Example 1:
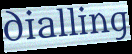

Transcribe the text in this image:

dialling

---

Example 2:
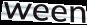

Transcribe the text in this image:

ween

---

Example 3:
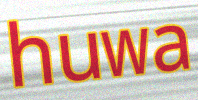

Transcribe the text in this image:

huwa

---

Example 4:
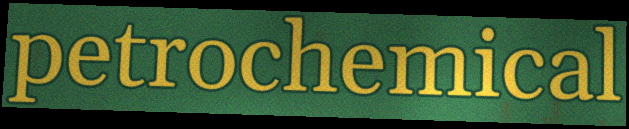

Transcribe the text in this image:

petrochemical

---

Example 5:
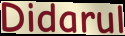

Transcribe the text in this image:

Didarul